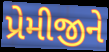
પ્રેમીજીને